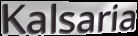
Kalsaria